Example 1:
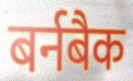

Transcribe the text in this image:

बर्नबैक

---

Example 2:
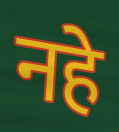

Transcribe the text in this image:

नहे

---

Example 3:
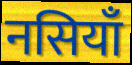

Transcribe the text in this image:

नसियाँ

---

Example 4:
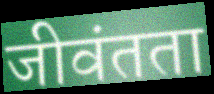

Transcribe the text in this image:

जीवंतता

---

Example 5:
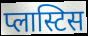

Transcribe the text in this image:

प्लास्टिस